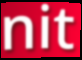
nit